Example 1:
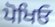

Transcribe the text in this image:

ਪੋਖਿਓ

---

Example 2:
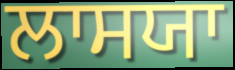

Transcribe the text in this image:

ਲਾਸਯਾ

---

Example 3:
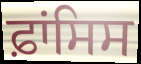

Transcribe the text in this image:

ਫ਼ਾਂਸਿਸ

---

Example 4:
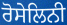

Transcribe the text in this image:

ਰੋਸੇਲਿਨੀ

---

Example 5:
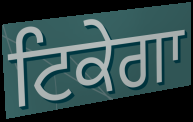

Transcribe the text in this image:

ਟਿਕੇਗਾ